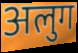
अलुग